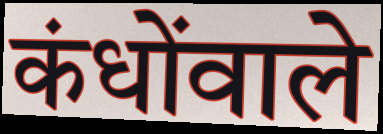
कंधोंवाले